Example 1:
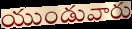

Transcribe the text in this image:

యుండువారు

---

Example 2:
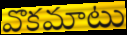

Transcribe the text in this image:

వొకమాటు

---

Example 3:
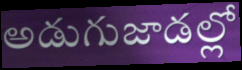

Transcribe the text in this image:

అడుగుజాడల్లో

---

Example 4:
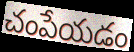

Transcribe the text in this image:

చంపేయడం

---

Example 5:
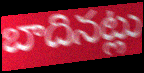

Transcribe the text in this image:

బాదినట్లు